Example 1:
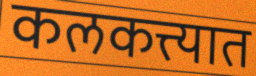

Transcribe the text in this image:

कलकत्त्यात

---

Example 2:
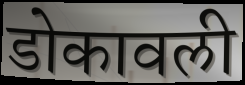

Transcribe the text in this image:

डोकावली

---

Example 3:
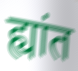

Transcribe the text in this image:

ह्यांत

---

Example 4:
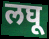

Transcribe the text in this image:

लघू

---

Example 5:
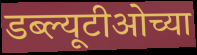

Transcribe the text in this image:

डब्ल्यूटीओच्या